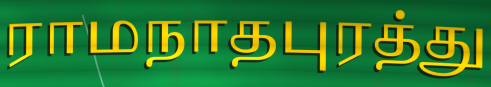
ராமநாதபுரத்து